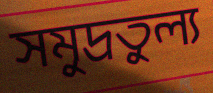
সমুদ্রতুল্য